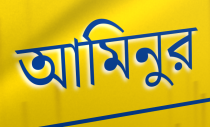
আমিনুর